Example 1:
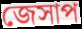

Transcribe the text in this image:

জেসাপ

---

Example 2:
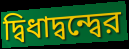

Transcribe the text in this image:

দ্বিধাদ্বন্দ্বের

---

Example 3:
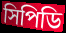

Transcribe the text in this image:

সিপিডি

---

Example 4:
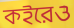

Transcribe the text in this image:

কইরেও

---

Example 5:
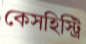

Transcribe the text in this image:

কেসহিস্ট্রি